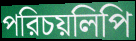
পরিচয়লিপি